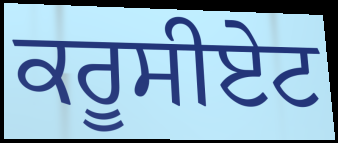
ਕਰੂਸੀਏਟ